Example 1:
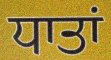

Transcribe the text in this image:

ਧਾਤਾਂ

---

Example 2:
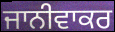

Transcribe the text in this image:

ਜਾਨੀਵਾਕਰ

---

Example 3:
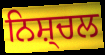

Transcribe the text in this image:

ਨਿਸ਼੍ਚਲ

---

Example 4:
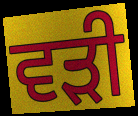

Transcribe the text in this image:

ਵੜੀ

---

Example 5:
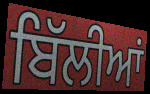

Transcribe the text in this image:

ਬਿੱਲੀਆਂ